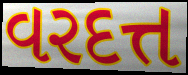
વરદત્ત